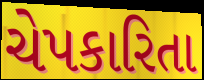
ચેપકારિતા